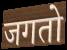
जगतो